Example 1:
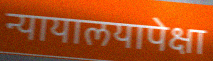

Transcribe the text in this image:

न्यायालयापेक्षा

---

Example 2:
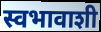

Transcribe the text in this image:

स्वभावाशी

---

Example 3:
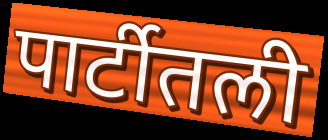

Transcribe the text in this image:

पार्टीतली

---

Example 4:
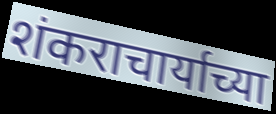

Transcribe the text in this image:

शंकराचार्याच्या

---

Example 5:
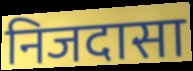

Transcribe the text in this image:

निजदासा